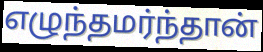
எழுந்தமர்ந்தான்